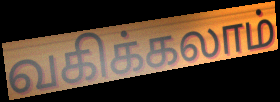
வகிக்கலாம்